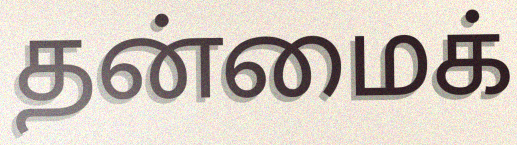
தன்மைக்